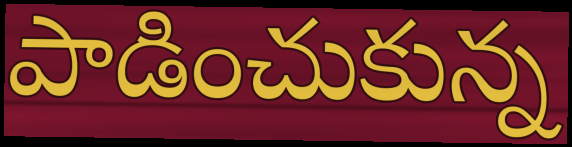
పాడించుకున్న